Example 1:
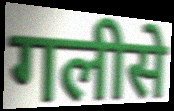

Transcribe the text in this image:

गलीसे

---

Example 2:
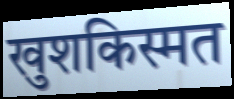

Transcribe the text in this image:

खुशकिस्मत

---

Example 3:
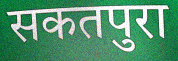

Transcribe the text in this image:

सकतपुरा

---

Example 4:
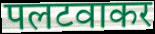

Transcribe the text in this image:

पलटवाकर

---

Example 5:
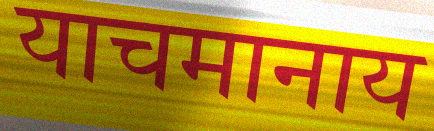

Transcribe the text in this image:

याचमानाय